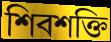
শিবশক্তি